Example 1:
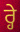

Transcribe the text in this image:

ਰ੍ਹੇ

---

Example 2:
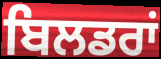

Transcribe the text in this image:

ਬਿਲਡਰਾਂ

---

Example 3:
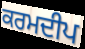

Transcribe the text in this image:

ਕਰਮਦੀਪ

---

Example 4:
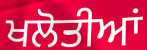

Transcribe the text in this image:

ਖਲੋਤੀਆਂ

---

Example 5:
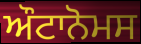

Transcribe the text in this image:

ਔਟਾਨੋਮਸ